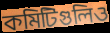
কমিটিগুলিও